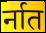
र्नात